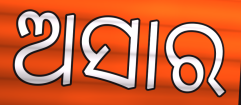
ଅସାର